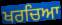
ਖਰਚਿਆ